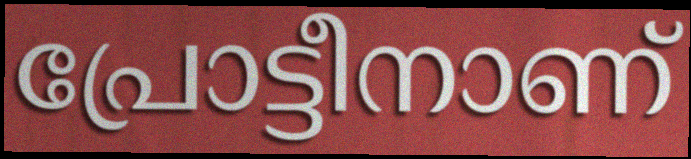
പ്രോട്ടീനാണ്